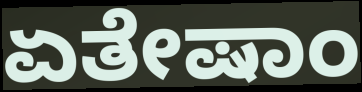
ಏತೇಷಾಂ